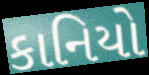
કાનિયો